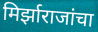
मिर्झाराजांचा